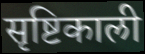
सृष्टिकाली